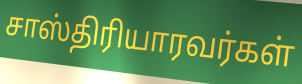
சாஸ்திரியாரவர்கள்